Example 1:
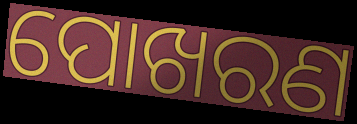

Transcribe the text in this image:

ପୋଖରଣ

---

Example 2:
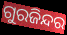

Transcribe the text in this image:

ଗୁରଜିନ୍ଦର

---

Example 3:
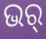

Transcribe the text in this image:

ଭର୍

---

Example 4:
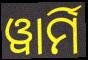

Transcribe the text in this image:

ୱାର୍ମି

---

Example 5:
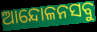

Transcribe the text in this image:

ଆନ୍ଦୋଳନସବୁ